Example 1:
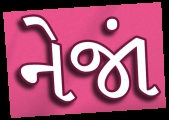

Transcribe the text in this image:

નેજાં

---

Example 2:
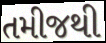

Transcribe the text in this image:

તમીજથી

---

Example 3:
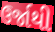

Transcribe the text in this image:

ઉર્જાથી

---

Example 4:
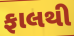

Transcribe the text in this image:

ફાલથી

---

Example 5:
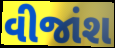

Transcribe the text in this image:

વીજાંશ